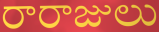
రారాజులు